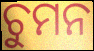
ଚୁମନ